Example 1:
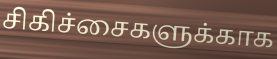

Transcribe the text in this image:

சிகிச்சைகளுக்காக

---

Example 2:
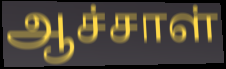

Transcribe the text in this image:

ஆச்சாள்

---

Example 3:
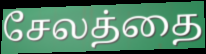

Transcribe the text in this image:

சேலத்தை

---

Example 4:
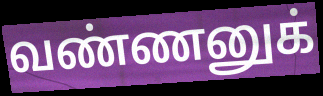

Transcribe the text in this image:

வண்ணனுக்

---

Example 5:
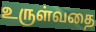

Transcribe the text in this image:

உருள்வதை